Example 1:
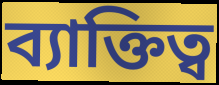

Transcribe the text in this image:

ব্যাক্তিত্ব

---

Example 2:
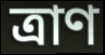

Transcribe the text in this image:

ত্রাণ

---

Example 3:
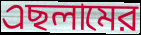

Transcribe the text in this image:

এছলামের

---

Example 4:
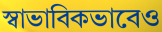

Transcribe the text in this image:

স্বাভাবিকভাবেও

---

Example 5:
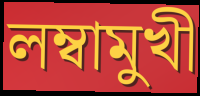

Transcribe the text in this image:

লম্বামুখী